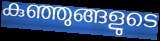
കുഞ്ഞുങ്ങളുടെ